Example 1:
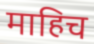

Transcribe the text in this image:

माहिच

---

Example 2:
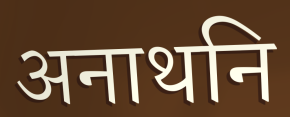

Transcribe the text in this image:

अनाथनि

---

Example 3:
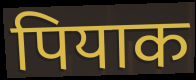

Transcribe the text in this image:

पियाक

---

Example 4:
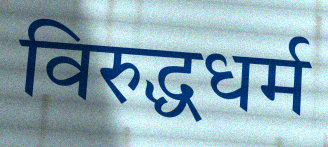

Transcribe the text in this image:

विरुद्धधर्म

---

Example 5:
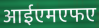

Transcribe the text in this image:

आईएमएफए